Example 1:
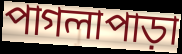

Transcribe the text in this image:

পাগলাপাড়া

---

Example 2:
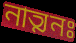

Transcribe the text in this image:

নাত্মনঃ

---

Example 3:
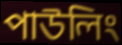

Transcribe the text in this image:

পাউলিং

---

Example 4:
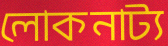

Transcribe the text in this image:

লোকনাট্য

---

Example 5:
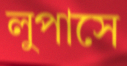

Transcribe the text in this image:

লুপাসে